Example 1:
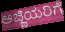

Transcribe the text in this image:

ಅಜ್ಜಿಯರಿಗೆ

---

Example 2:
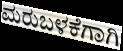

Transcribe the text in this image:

ಮರುಬಳಕೆಗಾಗಿ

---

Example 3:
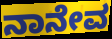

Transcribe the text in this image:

ನಾನೇವ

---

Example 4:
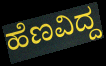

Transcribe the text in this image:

ಹೆಣವಿದ್ದ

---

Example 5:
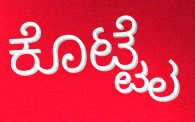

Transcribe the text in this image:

ಕೊಟ್ಟೈ